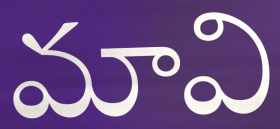
మావి